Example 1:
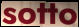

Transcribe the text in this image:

sotto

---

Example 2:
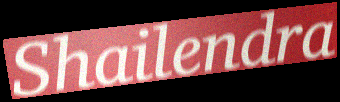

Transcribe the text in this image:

Shailendra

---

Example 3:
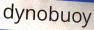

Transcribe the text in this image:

dynobuoy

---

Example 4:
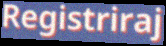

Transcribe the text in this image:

Registriraj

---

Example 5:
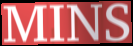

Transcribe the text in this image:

MINS